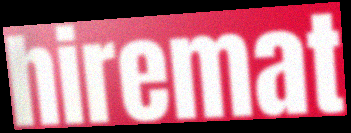
hiremat